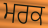
ਮਰਕ